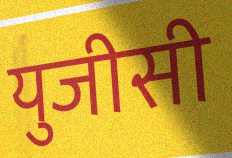
युजीसी